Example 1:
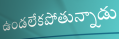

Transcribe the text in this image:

ఉండలేకపోతున్నాడు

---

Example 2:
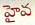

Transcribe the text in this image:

హైవ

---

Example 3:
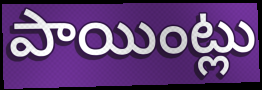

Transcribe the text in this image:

పాయింట్లు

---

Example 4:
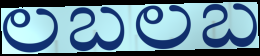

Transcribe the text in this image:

లబలబ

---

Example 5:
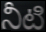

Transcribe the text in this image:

నీటి